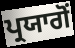
ਪ੍ਰਯਾਗੋਂ